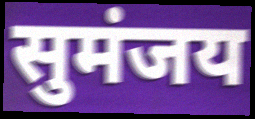
सुमंजय